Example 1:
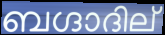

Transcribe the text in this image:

ബഗ്ദാദില്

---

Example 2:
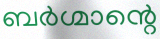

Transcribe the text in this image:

ബർഗ്മാന്റെ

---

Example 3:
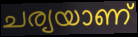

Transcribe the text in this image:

ചര്യയാണ്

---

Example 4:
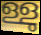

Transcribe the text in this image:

ള്ളു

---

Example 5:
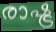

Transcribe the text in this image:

രാഷ്ട്ര